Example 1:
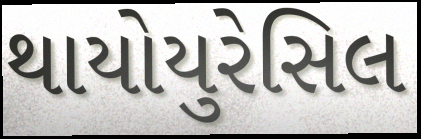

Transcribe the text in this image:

થાયોયુરેસિલ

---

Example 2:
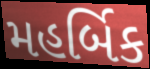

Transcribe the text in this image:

મહર્બિક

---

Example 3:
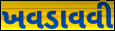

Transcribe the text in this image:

ખવડાવવી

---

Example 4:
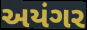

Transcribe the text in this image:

અયંગર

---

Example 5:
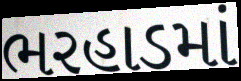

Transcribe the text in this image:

ભરહાડમાં